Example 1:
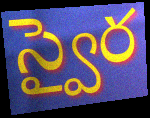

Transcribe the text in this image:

స్వైర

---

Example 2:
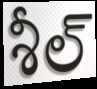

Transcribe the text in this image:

శీల్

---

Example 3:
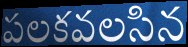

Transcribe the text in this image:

పలకవలసిన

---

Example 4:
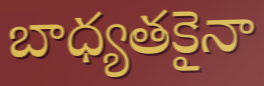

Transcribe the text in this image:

బాధ్యతకైనా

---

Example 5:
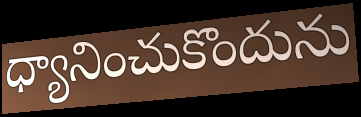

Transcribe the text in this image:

ధ్యానించుకొందును